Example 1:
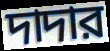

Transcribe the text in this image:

দাদার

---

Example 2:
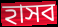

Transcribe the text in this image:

হাসব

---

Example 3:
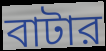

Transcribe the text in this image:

বাটার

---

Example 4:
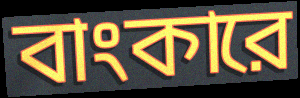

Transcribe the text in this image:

বাংকারে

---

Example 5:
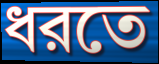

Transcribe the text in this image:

ধরতে